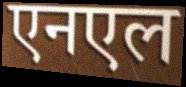
एनएल